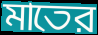
মাতের